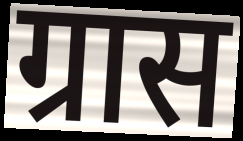
ग्रास